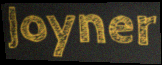
Joyner